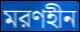
মরণহীন